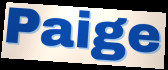
Paige